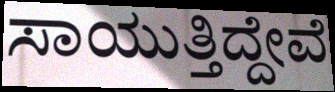
ಸಾಯುತ್ತಿದ್ದೇವೆ